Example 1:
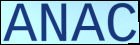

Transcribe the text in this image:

ANAC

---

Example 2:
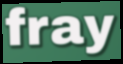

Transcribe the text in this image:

fray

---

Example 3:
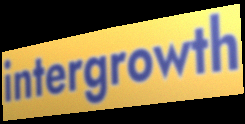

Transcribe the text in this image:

intergrowth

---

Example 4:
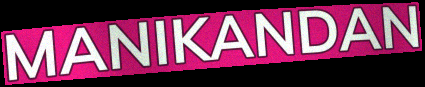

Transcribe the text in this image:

MANIKANDAN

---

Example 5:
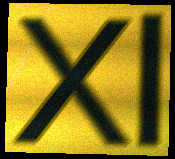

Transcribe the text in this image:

Xl